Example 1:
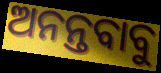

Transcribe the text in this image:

ଅନନ୍ତବାବୁ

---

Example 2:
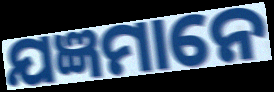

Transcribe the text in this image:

ଯଜ୍ଞମାନେ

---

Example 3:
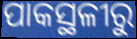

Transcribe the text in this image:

ପାକସ୍ଥଳୀରୁ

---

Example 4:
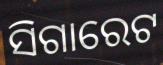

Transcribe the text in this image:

ସିଗାରେଟ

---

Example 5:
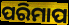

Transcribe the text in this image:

ପରିମାପ